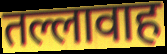
तल्लावाह